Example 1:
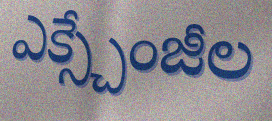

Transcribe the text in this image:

ఎక్స్చేంజీల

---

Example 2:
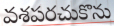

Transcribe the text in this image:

వశపరచుకొను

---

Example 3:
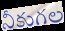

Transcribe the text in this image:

నీకుగల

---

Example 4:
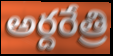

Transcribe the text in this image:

అర్దరేత్రి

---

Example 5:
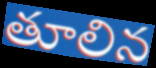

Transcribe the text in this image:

తూలిన